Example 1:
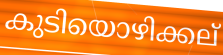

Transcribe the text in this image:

കുടിയൊഴിക്കല്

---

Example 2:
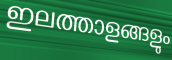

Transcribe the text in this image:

ഇലത്താളങ്ങളും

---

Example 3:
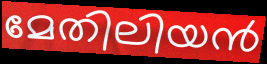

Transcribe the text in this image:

മേതിലിയൻ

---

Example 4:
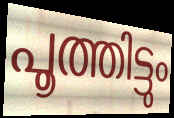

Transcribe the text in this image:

പൂത്തിട്ടും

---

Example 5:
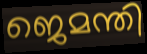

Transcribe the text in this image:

ജെമന്തി